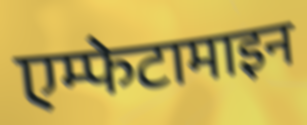
एम्फेटामाइन